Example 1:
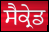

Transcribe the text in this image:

ਸੈਕ੍ਰੇਡ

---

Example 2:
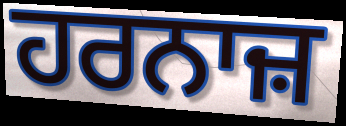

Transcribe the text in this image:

ਹਰਨਾਜ਼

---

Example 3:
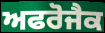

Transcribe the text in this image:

ਅਫਰੋਜੈਕ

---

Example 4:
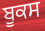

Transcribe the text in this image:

ਬੂਕਸ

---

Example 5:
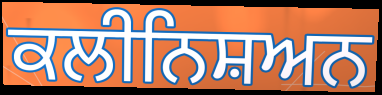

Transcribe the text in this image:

ਕਲੀਨਿਸ਼ਅਨ